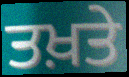
ਤਖ਼ਤੇ